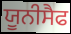
ਯੂਨੀਸੈਫ